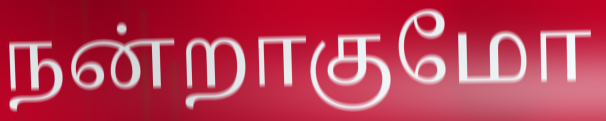
நன்றாகுமோ